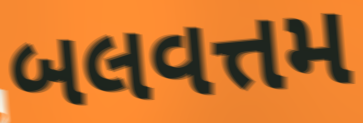
બલવત્તમ